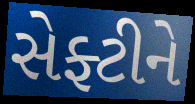
સેફ્ટીને